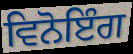
ਵਿਨੋਇੰਗ